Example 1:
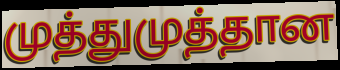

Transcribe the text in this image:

முத்துமுத்தான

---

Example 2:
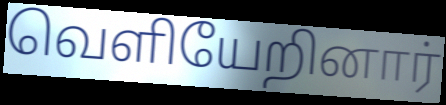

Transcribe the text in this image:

வெளியேறினார்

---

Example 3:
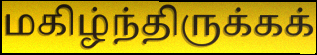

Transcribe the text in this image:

மகிழ்ந்திருக்கக்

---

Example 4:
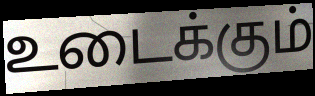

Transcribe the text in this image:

உடைக்கும்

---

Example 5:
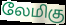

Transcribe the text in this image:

லேமிகு